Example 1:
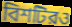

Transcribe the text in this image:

বিশটিরও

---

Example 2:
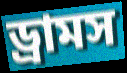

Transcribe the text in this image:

ড্রামস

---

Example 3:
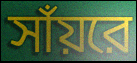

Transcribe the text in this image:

সাঁয়রে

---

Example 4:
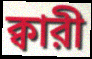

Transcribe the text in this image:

ক্বারী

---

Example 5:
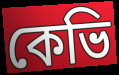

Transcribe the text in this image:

কেভি